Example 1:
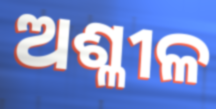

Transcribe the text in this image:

ଅଶ୍ଳୀଳ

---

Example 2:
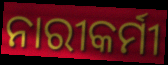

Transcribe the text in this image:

ନାରୀକର୍ମୀ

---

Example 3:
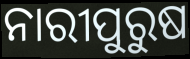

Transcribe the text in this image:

ନାରୀପୁରୁଷ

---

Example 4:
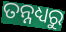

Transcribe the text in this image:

ତନ୍ନଧ୍ୟରୁ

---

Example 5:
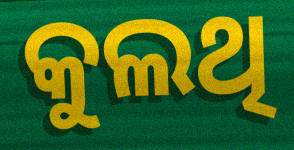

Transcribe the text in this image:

କୁଲଥି